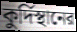
কুর্দিস্থানের